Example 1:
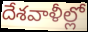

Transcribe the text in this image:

దేశవాళీల్లో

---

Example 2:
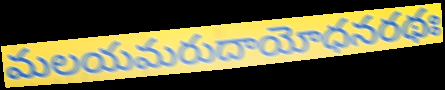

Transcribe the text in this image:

మలయమరుదాయోధనరథః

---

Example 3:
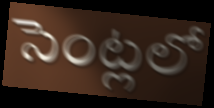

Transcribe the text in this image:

సెంట్లలో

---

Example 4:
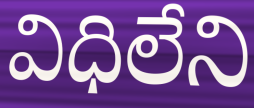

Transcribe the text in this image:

విధిలేని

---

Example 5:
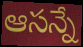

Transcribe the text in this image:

ఆసన్నే